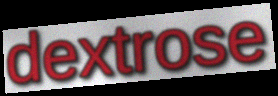
dextrose